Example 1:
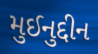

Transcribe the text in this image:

મુઈનુદ્દીન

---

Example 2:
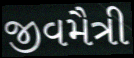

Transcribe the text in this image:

જીવમૈત્રી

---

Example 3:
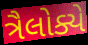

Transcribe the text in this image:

ત્રૈલોક્યે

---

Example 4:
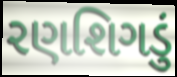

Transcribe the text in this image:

રણશિગડું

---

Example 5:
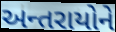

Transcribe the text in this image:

અન્તરાયોને